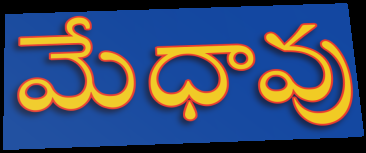
మేధావు